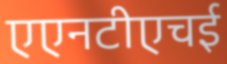
एएनटीएचई